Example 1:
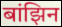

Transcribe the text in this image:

बांझिन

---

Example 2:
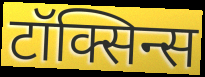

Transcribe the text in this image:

टॉक्सिन्स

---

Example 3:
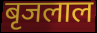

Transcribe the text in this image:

बृजलाल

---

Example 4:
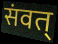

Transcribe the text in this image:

संवत्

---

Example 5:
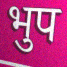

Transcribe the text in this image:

भुप